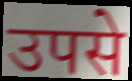
उपसे